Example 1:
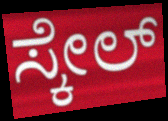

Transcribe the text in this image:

ಸ್ಕೇಲ್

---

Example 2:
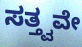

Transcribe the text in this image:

ಸತ್ತ್ವವೇ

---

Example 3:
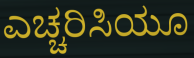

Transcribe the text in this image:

ಎಚ್ಚರಿಸಿಯೂ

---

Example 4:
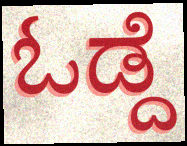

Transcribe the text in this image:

ಓಡ್ದೆ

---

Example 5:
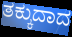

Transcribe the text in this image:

ತಕ್ಕುದಾದ